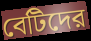
বেটিদের